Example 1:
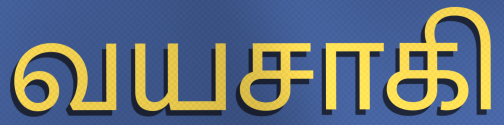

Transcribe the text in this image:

வயசாகி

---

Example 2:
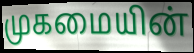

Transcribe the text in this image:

முகமையின்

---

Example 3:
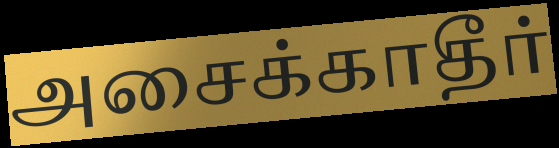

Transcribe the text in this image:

அசைக்காதீர்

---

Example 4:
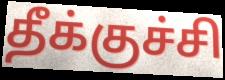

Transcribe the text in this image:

தீக்குச்சி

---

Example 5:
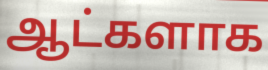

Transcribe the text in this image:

ஆட்களாக